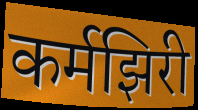
कर्मझिरी